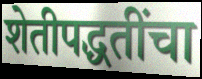
शेतीपद्धतींचा